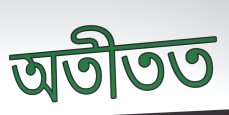
অতীতত